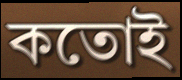
কতোই